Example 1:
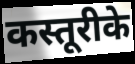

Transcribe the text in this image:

कस्तूरीके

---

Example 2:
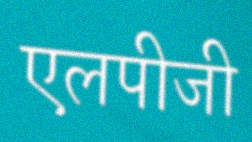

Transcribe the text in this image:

एलपीजी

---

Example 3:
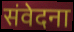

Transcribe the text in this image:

संवेदना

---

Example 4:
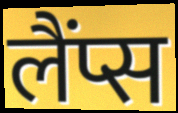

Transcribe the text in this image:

लैंप्स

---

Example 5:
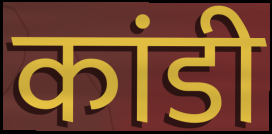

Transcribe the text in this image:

कांडी